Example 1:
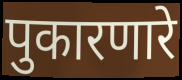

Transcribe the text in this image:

पुकारणारे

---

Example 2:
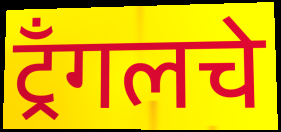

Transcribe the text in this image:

ट्रँगलचे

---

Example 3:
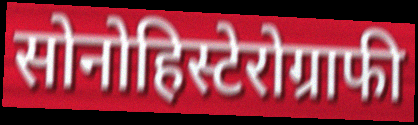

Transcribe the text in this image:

सोनोहिस्टेरोग्राफी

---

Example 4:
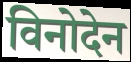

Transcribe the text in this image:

विनोदेन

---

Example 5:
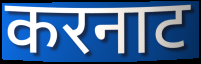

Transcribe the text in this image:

करनाट